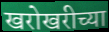
खरोखरीच्या